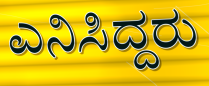
ಎನಿಸಿದ್ದರು